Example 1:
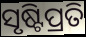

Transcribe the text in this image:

ସୃଷ୍ଟିପ୍ରତି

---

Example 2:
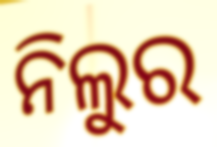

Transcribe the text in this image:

ନିଲୁର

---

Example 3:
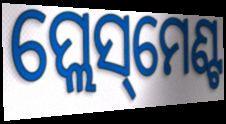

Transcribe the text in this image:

ପ୍ଲେସ୍‌ମେଣ୍ଟ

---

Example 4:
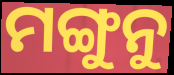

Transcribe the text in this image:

ମଙ୍ଗୁନୁ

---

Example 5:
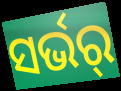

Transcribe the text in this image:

ସର୍ଭର୍